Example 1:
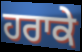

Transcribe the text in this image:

ਹਰਾਕੇ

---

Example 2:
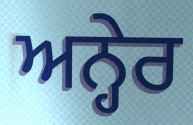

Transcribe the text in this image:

ਅਨ੍ਹੇਰ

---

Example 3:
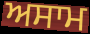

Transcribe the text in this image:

ਅਸਾਮ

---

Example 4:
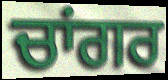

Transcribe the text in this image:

ਚਾਂਗਰ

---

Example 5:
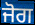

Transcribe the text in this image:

ਜੋਗ